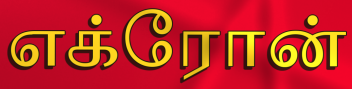
எக்ரோன்